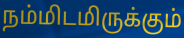
நம்மிடமிருக்கும்